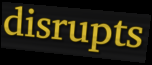
disrupts